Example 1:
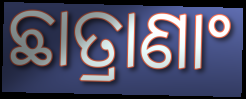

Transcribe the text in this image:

ଛାତ୍ରାଣାଂ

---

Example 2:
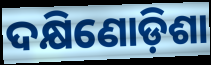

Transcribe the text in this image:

ଦକ୍ଷିଣୋଡ଼ିଶା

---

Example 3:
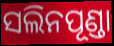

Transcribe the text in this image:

ସଲିନପୂଣ୍ଡା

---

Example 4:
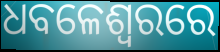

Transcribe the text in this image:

ଧବଳେଶ୍ଵରରେ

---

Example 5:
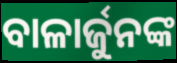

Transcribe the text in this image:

ବାଳାର୍ଜୁନଙ୍କ